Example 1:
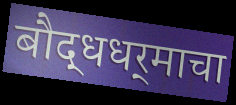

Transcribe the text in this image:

बौद्धधर्माचा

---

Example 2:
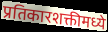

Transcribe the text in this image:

प्रतिकारशक्तीमध्ये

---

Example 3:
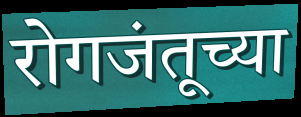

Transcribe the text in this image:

रोगजंतूच्या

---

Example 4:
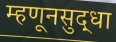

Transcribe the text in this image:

म्हणूनसुद्धा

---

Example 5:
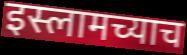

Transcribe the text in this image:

इस्लामच्याच